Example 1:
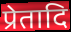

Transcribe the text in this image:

प्रेतादि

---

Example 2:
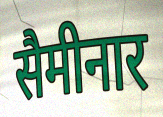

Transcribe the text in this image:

सैमीनार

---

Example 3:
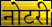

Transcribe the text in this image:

नोटरी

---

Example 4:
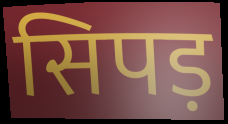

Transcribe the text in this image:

सिपड़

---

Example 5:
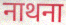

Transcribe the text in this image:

नाथना